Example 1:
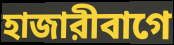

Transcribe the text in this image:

হাজারীবাগে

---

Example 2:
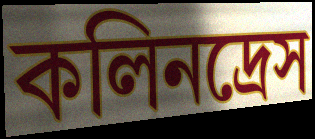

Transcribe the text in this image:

কলিনদ্রেস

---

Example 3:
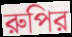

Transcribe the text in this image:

রুপির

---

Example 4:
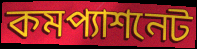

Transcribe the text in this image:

কমপ্যাশনেট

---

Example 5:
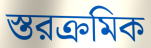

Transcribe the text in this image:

স্তরক্রমিক